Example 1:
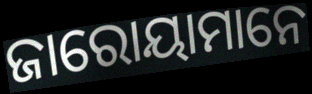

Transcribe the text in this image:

ଜାରୋୟାମାନେ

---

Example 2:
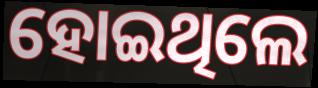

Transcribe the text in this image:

ହୋଇଥିଲେ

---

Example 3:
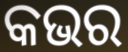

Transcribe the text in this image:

କଭର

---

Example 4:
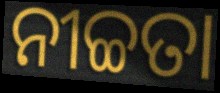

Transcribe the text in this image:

ନୀଚ୍ଚତା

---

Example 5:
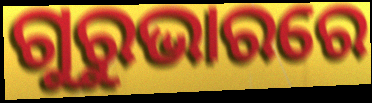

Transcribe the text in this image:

ଗୁରୁଭାରରେ